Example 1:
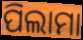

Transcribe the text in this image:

ପିଲାମା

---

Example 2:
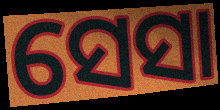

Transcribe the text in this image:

ସେସା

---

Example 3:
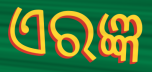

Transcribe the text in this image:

ଏରଜ୍ଞ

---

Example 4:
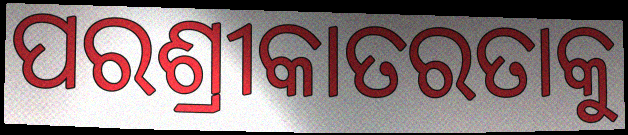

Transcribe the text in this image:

ପରଶ୍ରୀକାତରତାକୁ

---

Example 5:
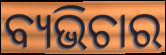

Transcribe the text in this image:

ବ୍ୟଭିଚାର